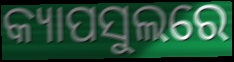
କ୍ୟାପସୁଲରେ